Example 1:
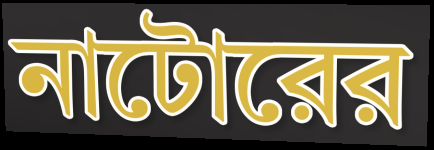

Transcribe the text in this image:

নাটোরের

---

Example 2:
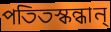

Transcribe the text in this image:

পতিতস্কন্ধান্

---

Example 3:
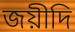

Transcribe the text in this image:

জয়ীদি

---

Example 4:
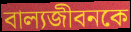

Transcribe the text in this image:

বাল্যজীবনকে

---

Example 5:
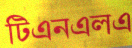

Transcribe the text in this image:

টিএনএলএ